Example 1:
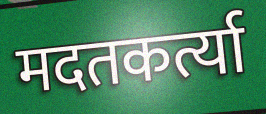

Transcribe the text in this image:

मदतकर्त्या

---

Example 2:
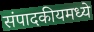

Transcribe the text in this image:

संपादकीयमध्ये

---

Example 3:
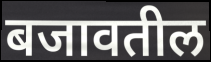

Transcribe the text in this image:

बजावतील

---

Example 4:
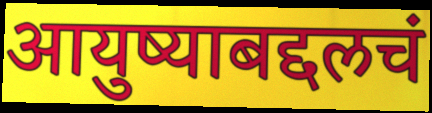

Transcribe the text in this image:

आयुष्याबद्दलचं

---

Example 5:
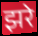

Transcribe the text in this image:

झरे